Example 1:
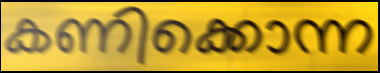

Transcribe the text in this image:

കണിക്കൊന്ന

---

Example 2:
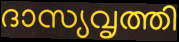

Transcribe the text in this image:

ദാസ്യവൃത്തി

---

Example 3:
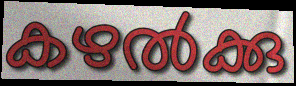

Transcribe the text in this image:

കഴൽക്കു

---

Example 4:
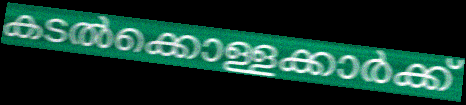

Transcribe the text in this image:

കടൽക്കൊള്ളക്കാർക്ക്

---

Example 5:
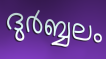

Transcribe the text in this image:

ദുർബ്ബലം